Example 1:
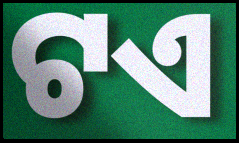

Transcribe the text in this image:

ଟଏ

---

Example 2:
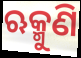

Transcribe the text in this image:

ଋକ୍ମୁଣି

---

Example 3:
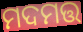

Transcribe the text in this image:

ମଦମତ୍ତ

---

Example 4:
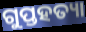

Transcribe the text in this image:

ଗୁପ୍ତହତ୍ୟା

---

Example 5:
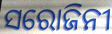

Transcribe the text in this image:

ସରୋଜିନୀ